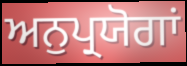
ਅਨੁਪ੍ਰਯੋਗਾਂ